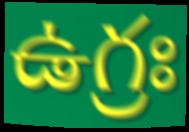
ఉగ్రః